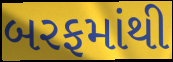
બરફમાંથી